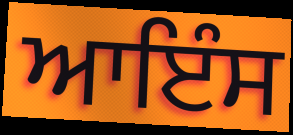
ਆਇੰਸ